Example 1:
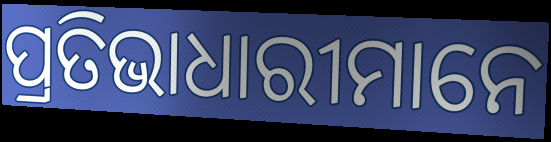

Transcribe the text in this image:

ପ୍ରତିଭାଧାରୀମାନେ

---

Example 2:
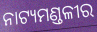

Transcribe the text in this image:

ନାଟ୍ୟମଣ୍ଡଳୀର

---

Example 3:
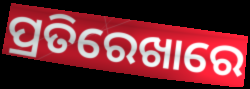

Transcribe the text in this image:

ପ୍ରତିରେଖାରେ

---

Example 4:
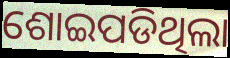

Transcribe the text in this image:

ଶୋଇପଡିଥିଲା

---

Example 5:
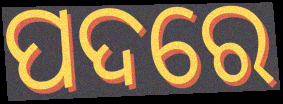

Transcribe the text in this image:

ପଦରେ